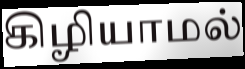
கிழியாமல்